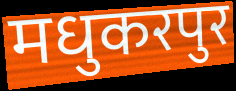
मधुकरपुर